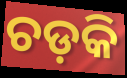
ଚଡ଼କି